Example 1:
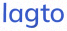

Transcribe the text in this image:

lagto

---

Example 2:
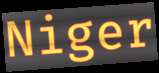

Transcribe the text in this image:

Niger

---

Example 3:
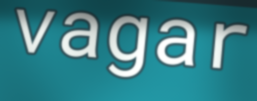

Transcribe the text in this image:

vagar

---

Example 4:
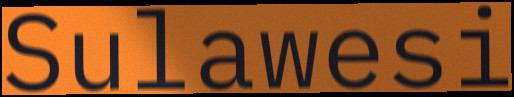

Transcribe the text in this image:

Sulawesi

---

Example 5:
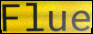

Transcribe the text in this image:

Flue